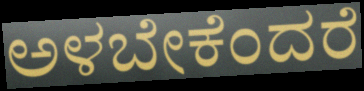
ಅಳಬೇಕೆಂದರೆ